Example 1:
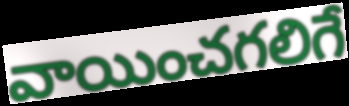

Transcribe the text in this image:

వాయించగలిగే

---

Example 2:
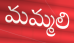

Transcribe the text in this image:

మమ్మలి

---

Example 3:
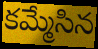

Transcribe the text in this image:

కమ్మేసిన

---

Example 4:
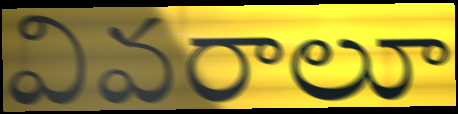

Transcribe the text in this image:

వివరాలూ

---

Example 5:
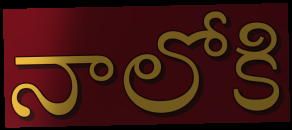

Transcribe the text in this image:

నాలోకి